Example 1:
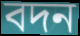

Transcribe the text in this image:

বদন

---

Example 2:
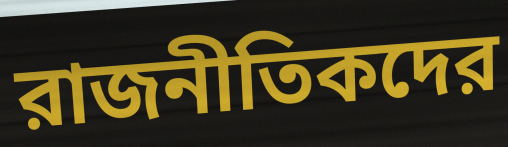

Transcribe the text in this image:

রাজনীতিকদের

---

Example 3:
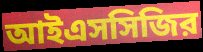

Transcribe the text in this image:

আইএসসিজির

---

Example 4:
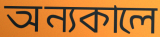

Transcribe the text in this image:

অন্যকালে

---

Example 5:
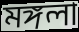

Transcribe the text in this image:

মঙ্গলা